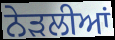
ਨੇੜਲੀਆਂ